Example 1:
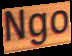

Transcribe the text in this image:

Ngo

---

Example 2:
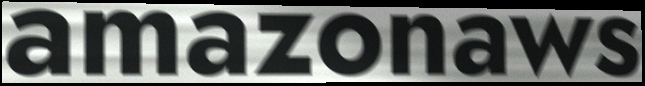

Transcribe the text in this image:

amazonaws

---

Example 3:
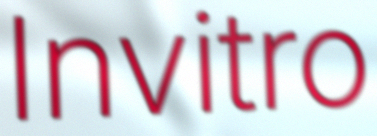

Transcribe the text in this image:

Invitro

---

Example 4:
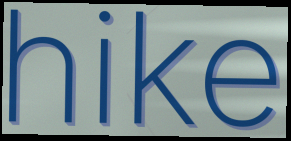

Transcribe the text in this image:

hike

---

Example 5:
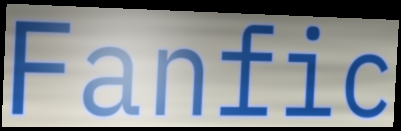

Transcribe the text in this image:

Fanfic